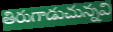
తిరుగాడుచున్నవి